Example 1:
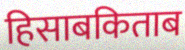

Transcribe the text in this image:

हिसाबकिताब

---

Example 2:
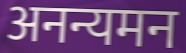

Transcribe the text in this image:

अनन्यमन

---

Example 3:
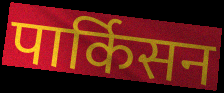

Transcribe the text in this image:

पार्किसन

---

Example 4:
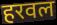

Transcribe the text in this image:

हरवल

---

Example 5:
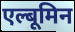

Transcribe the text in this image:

एल्बूमिन